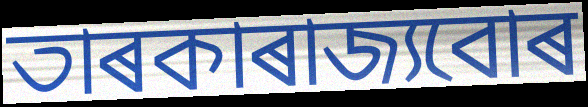
তাৰকাৰাজ্যবোৰ